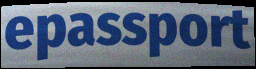
epassport